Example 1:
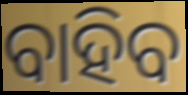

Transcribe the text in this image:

ବାହିବ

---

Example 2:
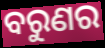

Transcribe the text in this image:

ବରୁଣର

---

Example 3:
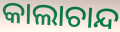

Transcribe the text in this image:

କାଲାଚାନ୍ଦ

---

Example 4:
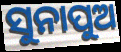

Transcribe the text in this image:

ସୁନାପୁଅ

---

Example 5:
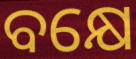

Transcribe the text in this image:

ବକ୍ଷେ